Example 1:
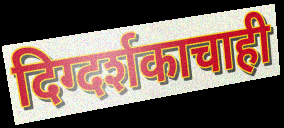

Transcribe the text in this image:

दिग्दर्शकाचाही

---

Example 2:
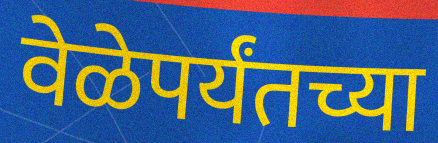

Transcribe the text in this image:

वेळेपर्यंतच्या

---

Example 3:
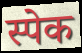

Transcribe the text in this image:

स्पेक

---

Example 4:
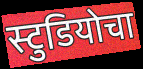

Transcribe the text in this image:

स्टुडियोचा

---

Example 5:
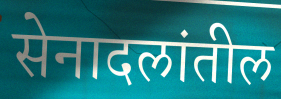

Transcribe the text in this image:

सेनादलांतील